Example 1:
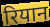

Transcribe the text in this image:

रियान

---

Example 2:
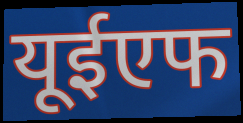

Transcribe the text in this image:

यूईएफ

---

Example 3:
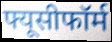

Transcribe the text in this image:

फ्यूसीफॉर्म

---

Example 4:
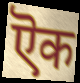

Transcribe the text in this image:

ऎक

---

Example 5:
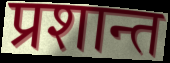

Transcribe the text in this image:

प्रशान्त